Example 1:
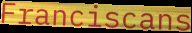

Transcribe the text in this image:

Franciscans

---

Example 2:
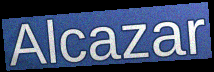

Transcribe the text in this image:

Alcazar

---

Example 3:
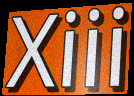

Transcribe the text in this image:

Xiii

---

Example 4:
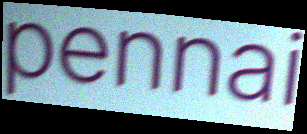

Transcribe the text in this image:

pennai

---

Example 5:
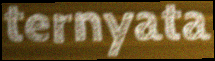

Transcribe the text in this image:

ternyata